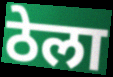
ठेला